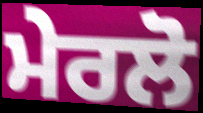
ਮੇਰਲੋ